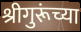
श्रीगुरूंच्या